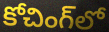
కోచింగ్‌లో